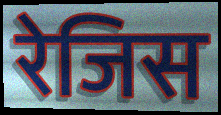
रेजिस